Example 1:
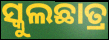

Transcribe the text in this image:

ସ୍କୁଲଛାତ୍ର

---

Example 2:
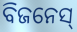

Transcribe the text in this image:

ବିଜନେସ୍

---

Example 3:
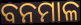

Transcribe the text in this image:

ବନମାଳ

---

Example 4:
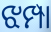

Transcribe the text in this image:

ଝମ୍ପା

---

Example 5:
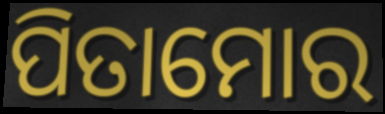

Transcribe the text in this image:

ପିତାମୋର